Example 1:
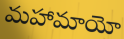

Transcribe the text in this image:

మహామాయో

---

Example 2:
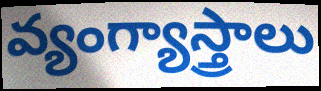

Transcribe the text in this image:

వ్యంగ్యాస్త్రాలు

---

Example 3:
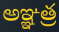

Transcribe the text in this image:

అఞ్ఞత్ర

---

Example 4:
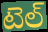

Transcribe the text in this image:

టెల్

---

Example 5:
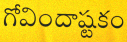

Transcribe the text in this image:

గోవిందాష్టకం